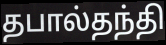
தபால்தந்தி